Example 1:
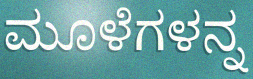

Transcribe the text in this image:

ಮೂಳೆಗಳನ್ನ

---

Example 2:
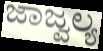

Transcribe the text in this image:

ಜಾಜ್ವಲ್ಯ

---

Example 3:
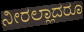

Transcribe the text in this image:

ನೀರಲ್ಲಾದರೂ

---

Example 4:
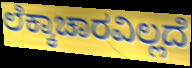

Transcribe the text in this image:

ಲೆಕ್ಕಾಚಾರವಿಲ್ಲದೆ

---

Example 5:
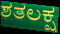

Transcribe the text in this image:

ಶತಲಕ್ಷ